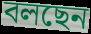
বলছেন